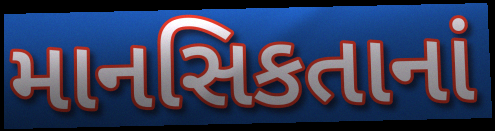
માનસિકતાનાં